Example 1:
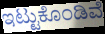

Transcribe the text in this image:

ಇಟ್ಟುಕೊಂಡಿವೆ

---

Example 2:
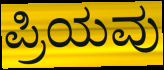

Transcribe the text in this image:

ಪ್ರಿಯವು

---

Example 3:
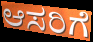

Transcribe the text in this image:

ಆಸರಿಗೆ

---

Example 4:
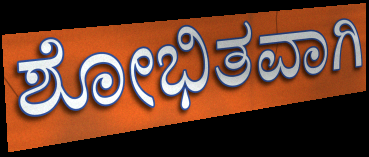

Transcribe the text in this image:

ಶೋಭಿತವಾಗಿ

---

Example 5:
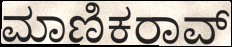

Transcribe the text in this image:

ಮಾಣಿಕರಾವ್